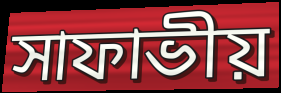
সাফাভীয়